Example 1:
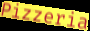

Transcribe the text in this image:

Pizzeria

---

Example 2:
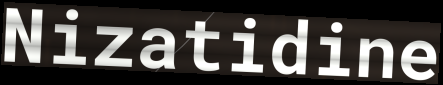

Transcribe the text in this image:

Nizatidine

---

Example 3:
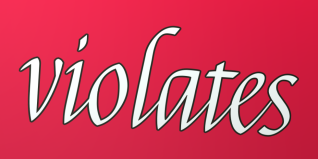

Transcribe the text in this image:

violates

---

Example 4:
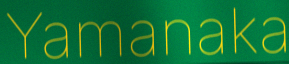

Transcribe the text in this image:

Yamanaka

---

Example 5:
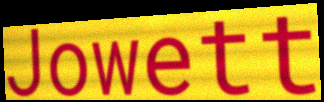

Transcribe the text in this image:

Jowett